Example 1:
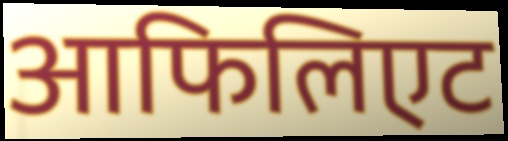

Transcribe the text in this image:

आफिलिएट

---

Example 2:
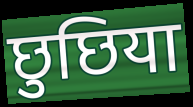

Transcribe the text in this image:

छुछिया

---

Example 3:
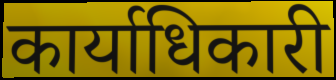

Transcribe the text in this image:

कार्याधिकारी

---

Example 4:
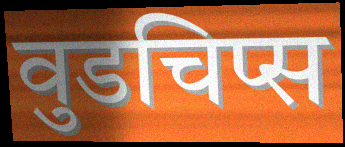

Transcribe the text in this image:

वुडचिप्स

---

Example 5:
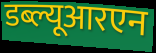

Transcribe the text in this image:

डब्ल्यूआरएन